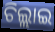
ଚିଲ୍ଲାଇ